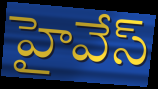
హైవేస్